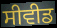
ਸੀਵੀਡ